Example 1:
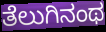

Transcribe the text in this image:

ತೆಲುಗಿನಂಥ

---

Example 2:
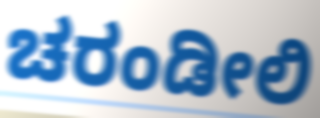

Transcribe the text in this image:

ಚರಂಡೀಲಿ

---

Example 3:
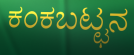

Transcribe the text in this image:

ಕಂಕಬಟ್ಟನ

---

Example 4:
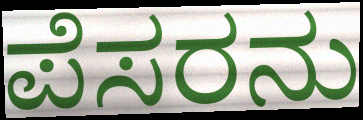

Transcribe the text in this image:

ಪೆಸರನು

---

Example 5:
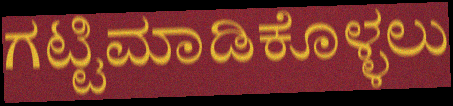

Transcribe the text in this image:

ಗಟ್ಟಿಮಾಡಿಕೊಳ್ಳಲು